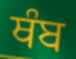
ਥੰਬ